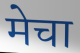
मेचा